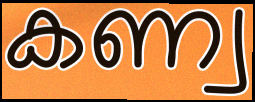
കണ്വ